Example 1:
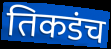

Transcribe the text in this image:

तिकडंच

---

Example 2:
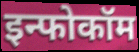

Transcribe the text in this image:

इन्फोकॉम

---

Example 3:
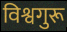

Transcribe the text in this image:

विश्वगुरू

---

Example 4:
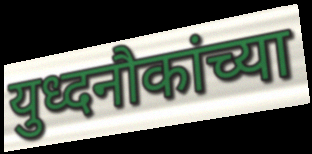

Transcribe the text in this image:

युध्दनौकांच्या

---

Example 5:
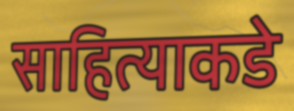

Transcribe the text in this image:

साहित्याकडे